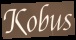
Kobus